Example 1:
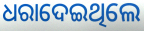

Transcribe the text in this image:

ଧରାଦେଇଥିଲେ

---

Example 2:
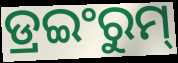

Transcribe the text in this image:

ଡ୍ରଇଂରୁମ୍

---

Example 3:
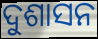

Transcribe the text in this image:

ଦୁଶାସନ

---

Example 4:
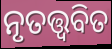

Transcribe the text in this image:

ନୃତତ୍ତ୍ୱବିତ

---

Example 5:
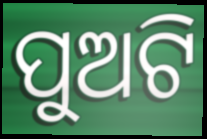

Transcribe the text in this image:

ପୁଅଟି